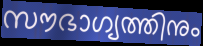
സൗഭാഗ്യത്തിനും